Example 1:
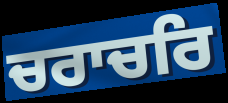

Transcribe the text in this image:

ਚਰਾਚਰਿ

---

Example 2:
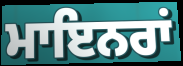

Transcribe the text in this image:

ਮਾਇਨਰਾਂ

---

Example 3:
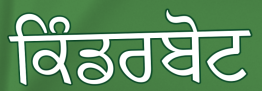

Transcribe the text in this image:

ਕਿੰਡਰਬੋਟ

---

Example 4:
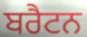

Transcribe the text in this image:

ਬਰੈਟਨ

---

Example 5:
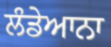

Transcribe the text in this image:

ਲੰਡੇਆਨਾ